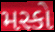
મસ્કો